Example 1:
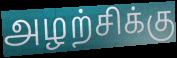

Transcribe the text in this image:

அழற்சிக்கு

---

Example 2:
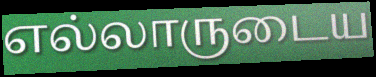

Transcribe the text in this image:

எல்லாருடைய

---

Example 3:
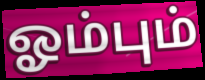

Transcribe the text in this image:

ஓம்பும்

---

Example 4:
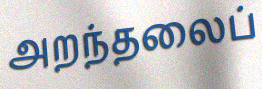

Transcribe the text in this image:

அறந்தலைப்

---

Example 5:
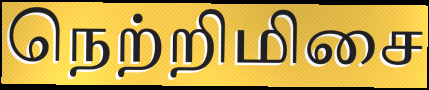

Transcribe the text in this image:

நெற்றிமிசை